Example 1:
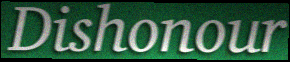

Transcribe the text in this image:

Dishonour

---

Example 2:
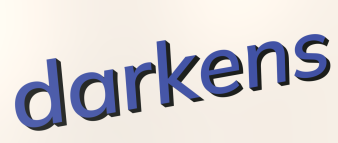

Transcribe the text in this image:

darkens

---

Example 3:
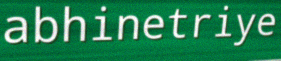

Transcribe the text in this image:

abhinetriye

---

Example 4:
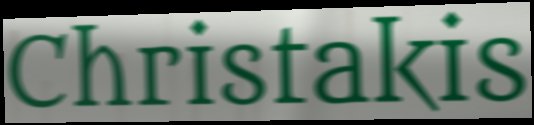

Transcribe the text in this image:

Christakis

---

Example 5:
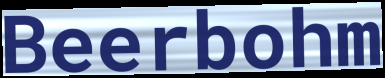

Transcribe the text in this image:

Beerbohm